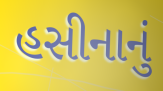
હસીનાનું